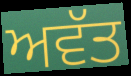
ਅਵੱਤ